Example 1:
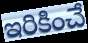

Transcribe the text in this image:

ఇరికించే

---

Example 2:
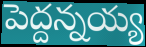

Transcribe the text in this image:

పెద్దన్నయ్య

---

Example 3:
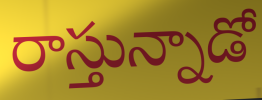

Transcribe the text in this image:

రాస్తున్నాడో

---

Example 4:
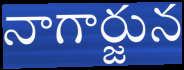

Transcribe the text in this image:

నాగార్జున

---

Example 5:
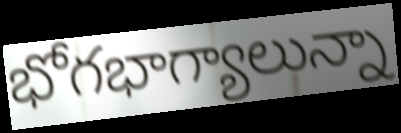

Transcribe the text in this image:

భోగభాగ్యాలున్నా